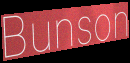
Bunson